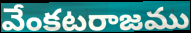
వేంకటరాజము